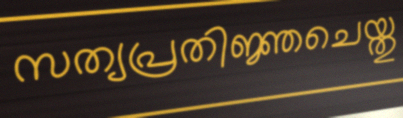
സത്യപ്രതിജ്ഞചെയ്തു